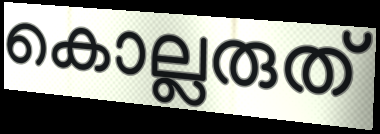
കൊല്ലരുത്